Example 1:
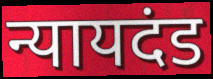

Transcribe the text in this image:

न्यायदंड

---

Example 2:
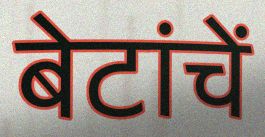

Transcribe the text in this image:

बेटांचें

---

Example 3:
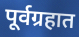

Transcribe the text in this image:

पूर्वग्रहात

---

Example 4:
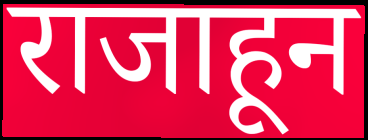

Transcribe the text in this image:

राजाहून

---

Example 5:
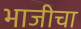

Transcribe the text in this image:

भाजीचा